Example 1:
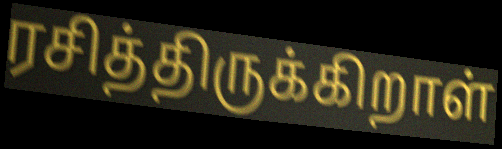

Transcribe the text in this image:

ரசித்திருக்கிறாள்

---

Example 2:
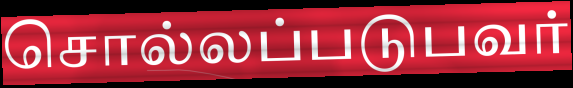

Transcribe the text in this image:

சொல்லப்படுபவர்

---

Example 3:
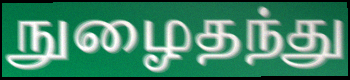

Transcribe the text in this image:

நுழைதந்து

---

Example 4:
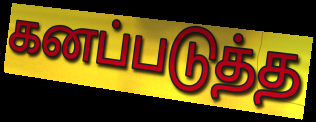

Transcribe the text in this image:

கனப்படுத்த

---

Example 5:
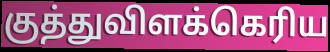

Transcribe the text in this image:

குத்துவிளக்கெரிய